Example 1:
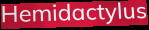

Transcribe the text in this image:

Hemidactylus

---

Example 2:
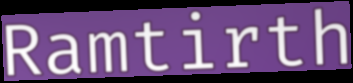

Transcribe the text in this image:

Ramtirth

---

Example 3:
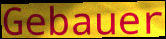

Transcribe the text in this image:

Gebauer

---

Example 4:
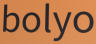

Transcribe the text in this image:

bolyo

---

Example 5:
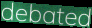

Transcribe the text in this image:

debated